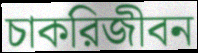
চাকরিজীবন